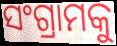
ସଂଗ୍ରାମକୁ